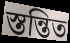
স্তন্তিত